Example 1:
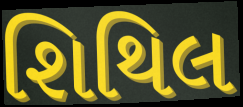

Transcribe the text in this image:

શિથિલ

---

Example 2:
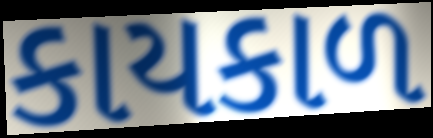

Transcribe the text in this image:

કાયકાળ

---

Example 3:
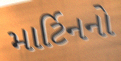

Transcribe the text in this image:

માર્ટિનનો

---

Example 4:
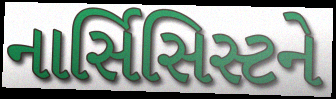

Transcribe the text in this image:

નાર્સિસિસ્ટને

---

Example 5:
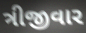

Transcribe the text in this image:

ત્રીજીવાર